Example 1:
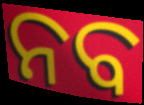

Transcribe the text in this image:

ନବ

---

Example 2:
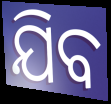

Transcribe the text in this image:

ଯିବ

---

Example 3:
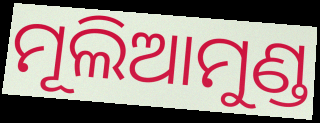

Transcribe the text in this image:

ମୂଲିଆମୁଣ୍ଡ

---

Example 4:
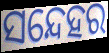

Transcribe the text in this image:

ସନ୍ଦେହର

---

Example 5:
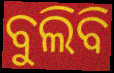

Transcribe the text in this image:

ବୁଲିବି